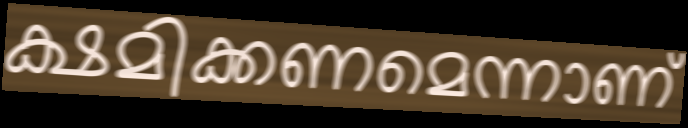
ക്ഷമിക്കണമെന്നാണ്